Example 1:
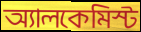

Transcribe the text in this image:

অ্যালকেমিস্ট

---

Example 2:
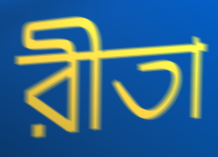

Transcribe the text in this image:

রীতা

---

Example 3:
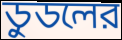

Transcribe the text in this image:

ডুডলের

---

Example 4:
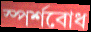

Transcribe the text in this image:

স্পর্শবোধ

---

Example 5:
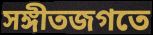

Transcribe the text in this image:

সঙ্গীতজগতে